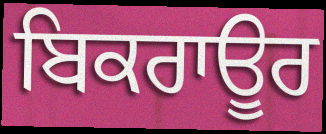
ਬਿਕਰਾਊਰ